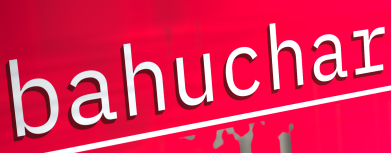
bahuchar